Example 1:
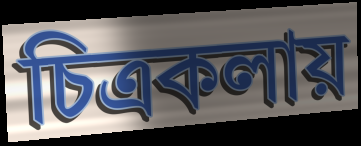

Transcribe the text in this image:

চিত্রকলায়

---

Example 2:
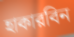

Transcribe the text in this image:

হাকারবিন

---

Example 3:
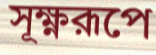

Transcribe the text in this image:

সূক্ষ্ণরূপে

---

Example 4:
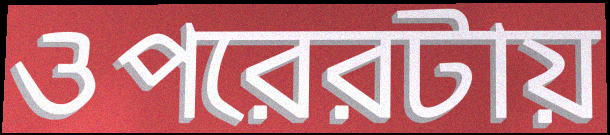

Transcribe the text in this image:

ওপরেরটায়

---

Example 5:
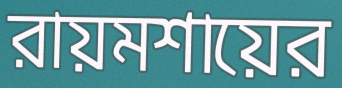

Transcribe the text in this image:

রায়মশায়ের